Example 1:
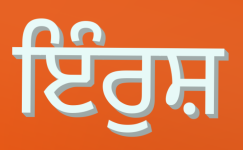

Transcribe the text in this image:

ਇੰਰੁਸ਼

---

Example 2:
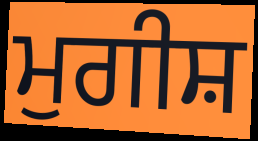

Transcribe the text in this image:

ਮੁਗੀਸ਼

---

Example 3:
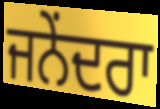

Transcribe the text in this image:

ਜਨੇਂਦਰਾ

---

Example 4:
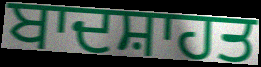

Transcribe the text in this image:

ਬਾਦਸ਼ਾਹਤ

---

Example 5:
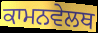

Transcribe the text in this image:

ਕਾਮਨਵੇਲਥ